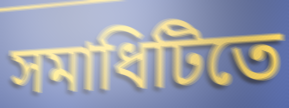
সমাধিটিতে